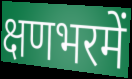
क्षणभरमें